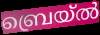
ബ്രെയ്ൽ